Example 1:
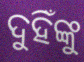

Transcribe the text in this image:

ଦୁହିଁଙ୍କୁ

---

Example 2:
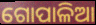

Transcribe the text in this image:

ଗୋପାଳିଆ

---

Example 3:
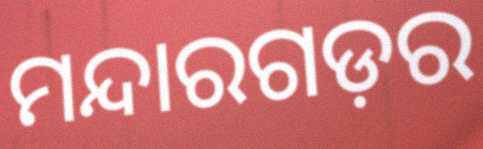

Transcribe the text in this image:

ମନ୍ଦାରଗଡ଼ର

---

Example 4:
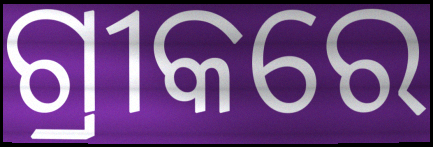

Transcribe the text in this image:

ଗ୍ରୀକରେ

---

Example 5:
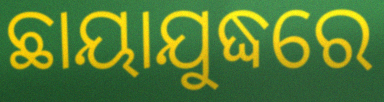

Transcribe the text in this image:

ଛାୟାଯୁଦ୍ଧରେ